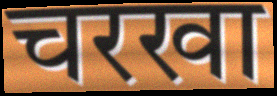
चरखा